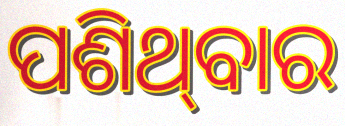
ପଶିଥ୍‌ବାର